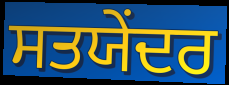
ਸਤਯੇਂਦਰ